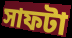
সাফটা